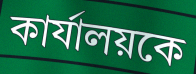
কার্যালয়কে